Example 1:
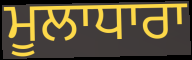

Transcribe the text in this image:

ਮੂਲਾਧਾਰਾ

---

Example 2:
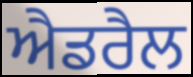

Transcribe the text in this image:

ਐਡਰੈਲ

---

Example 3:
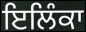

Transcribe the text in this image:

ਇਲਿੰਕਾ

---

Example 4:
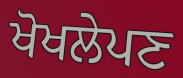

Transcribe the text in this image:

ਖੋਖਲੇਪਣ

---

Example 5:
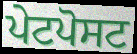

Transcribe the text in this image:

ਪੇਟਪੋਸਟ